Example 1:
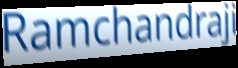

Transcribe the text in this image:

Ramchandraji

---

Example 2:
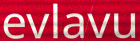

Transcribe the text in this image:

evlavu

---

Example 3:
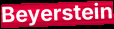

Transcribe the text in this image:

Beyerstein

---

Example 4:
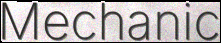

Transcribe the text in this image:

Mechanic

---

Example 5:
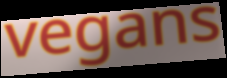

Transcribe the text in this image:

vegans